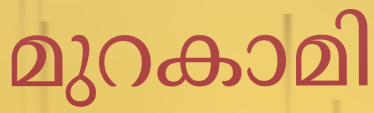
മുറകാമി